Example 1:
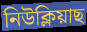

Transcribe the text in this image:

নিউক্লিয়াছ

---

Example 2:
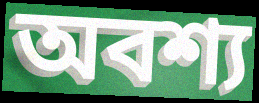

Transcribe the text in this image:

অবশ্য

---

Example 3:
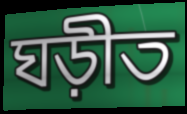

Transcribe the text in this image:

ঘড়ীত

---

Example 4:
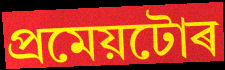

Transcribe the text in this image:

প্ৰমেয়টোৰ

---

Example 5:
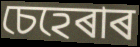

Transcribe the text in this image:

চেহেৰাৰ